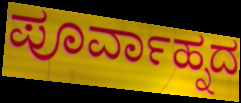
ಪೂರ್ವಾಹ್ನದ